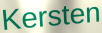
Kersten